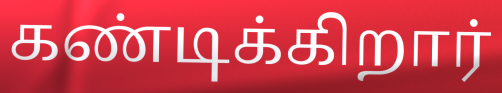
கண்டிக்கிறார்